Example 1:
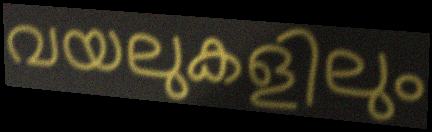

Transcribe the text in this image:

വയലുകളിലും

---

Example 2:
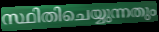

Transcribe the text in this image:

സ്ഥിതിചെയ്യുന്നതും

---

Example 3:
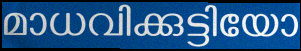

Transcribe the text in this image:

മാധവിക്കുട്ടിയോ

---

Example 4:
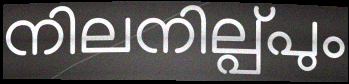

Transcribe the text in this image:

നിലനില്പ്പും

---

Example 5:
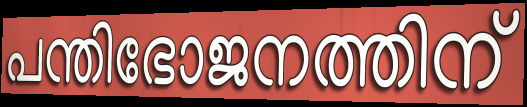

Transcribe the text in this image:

പന്തിഭോജനത്തിന്